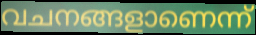
വചനങ്ങളാണെന്ന്